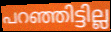
പറഞ്ഞിട്ടില്ല